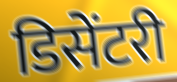
डिसेंटरी